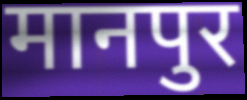
मानपुर